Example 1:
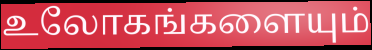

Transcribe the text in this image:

உலோகங்களையும்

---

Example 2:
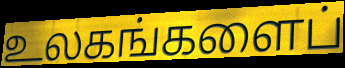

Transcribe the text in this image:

உலகங்களைப்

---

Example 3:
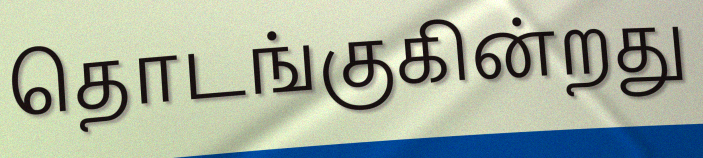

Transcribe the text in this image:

தொடங்குகின்றது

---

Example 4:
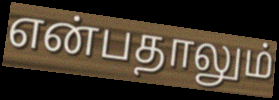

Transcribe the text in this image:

என்பதாலும்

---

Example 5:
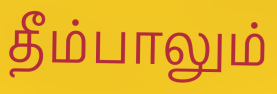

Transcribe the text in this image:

தீம்பாலும்